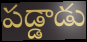
పడ్డాడు